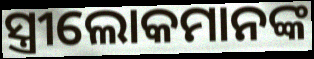
ସ୍ତ୍ରୀଲୋକମାନଙ୍କ